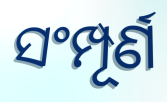
ସଂମ୍ପୂର୍ଣ